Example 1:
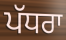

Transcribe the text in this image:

ਪੱਧਰਾ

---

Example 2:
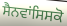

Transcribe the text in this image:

ਸੈਨਵਾਂਸਿਸਕੋ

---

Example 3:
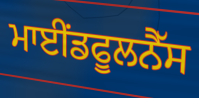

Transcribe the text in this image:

ਮਾਈਂਡਫੂਲਨੈੱਸ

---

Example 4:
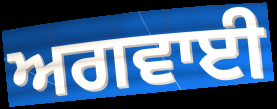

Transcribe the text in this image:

ਅਗਵਾਈ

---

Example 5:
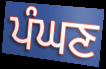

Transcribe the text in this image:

ਪੰਘਣ